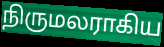
நிருமலராகிய